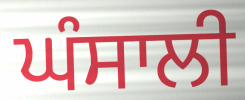
ਘੰਸਾਲੀ